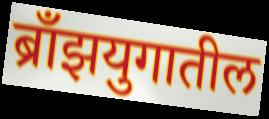
ब्राँझयुगातील